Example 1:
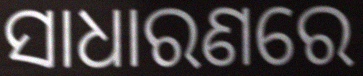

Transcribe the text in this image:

ସାଧାରଣରେ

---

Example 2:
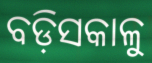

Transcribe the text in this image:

ବଡ଼ିସକାଳୁ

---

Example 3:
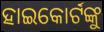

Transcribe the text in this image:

ହାଇକୋର୍ଟଙ୍କୁ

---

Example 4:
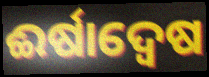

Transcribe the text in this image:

ଈର୍ଷାଦ୍ଵେଷ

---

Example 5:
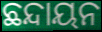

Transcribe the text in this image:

ଛନ୍ଦାୟନ